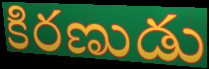
కిరణుడు